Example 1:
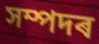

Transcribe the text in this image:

সম্পদৰ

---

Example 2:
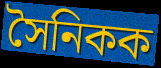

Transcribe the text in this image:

সৈনিকক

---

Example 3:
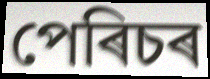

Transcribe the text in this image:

পেৰিচৰ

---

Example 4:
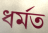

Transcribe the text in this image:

ধৰ্মত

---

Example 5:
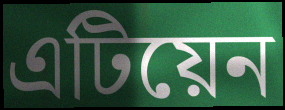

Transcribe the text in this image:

এটিয়েন